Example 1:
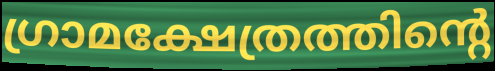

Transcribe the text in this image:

ഗ്രാമക്ഷേത്രത്തിന്റെ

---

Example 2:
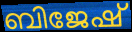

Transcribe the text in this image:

ബിജേഷ്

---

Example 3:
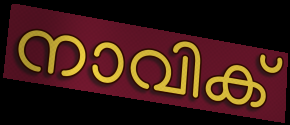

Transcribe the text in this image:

നാവിക്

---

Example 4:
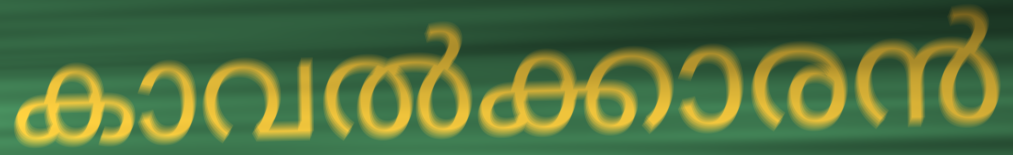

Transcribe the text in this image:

കാവൽക്കാരൻ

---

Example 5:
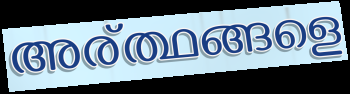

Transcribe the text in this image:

അര്ത്ഥങ്ങളെ